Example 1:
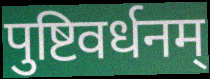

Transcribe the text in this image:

पुष्टिवर्धनम्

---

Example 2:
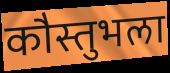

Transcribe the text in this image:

कौस्तुभला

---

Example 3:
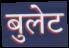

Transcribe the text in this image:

बुलेट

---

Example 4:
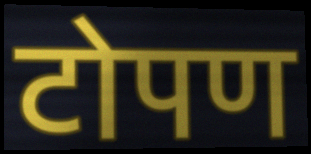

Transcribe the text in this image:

टोपण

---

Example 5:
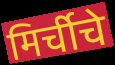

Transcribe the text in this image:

मिर्चीचे